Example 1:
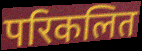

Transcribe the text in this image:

परिकलित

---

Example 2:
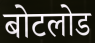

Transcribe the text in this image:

बोटलोड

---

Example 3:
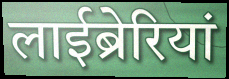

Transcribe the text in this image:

लाईब्रेरियां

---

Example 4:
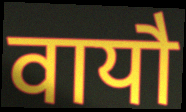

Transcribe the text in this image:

वायौ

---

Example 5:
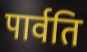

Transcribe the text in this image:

पार्वति